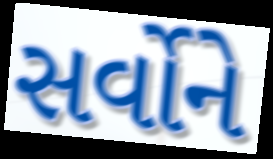
સર્વોને